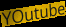
YOutube